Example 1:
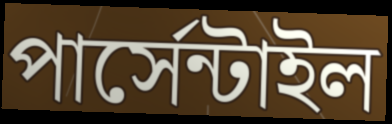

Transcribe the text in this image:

পার্সেন্টাইল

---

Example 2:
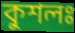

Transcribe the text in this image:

কুশলঃ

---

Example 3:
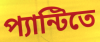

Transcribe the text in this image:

প্যান্টিতে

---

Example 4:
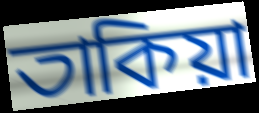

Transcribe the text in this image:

তাকিয়া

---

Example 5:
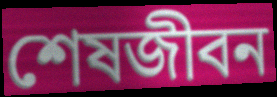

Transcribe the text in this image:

শেষজীবন